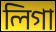
লিগা